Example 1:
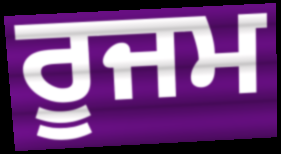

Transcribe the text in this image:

ਰੂਜਮ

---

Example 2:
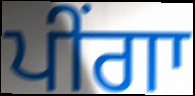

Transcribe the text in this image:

ਪੀਂਗਾ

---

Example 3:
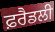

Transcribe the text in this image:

ਫ਼ਰੈਡਲੀ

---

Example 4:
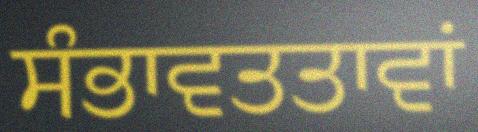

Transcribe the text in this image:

ਸੰਭਾਵਤਤਾਵਾਂ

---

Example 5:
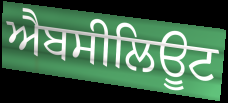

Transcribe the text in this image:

ਐਬਸੀਲਿਊਟ